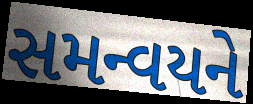
સમન્વયને